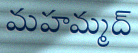
మహమ్మద్